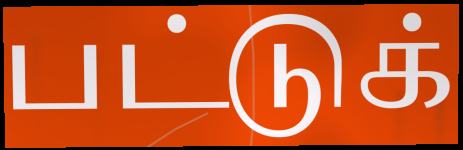
பட்டுக்